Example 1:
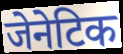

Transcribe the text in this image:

जेनेटिक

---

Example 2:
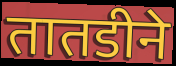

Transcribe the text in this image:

तातडीने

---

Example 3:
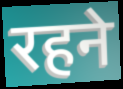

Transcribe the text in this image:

रहने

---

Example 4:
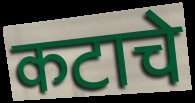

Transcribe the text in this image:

कटाचे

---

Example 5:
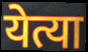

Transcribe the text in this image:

येत्या